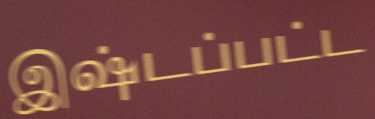
இஷ்டப்பட்ட